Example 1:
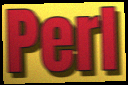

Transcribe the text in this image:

Perl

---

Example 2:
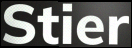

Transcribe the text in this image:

Stier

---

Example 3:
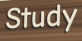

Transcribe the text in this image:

Study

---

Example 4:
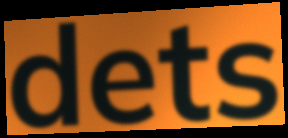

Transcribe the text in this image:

dets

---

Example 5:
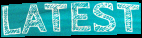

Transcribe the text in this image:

LATEST